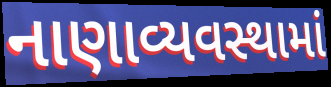
નાણાવ્યવસ્થામાં